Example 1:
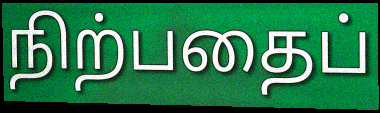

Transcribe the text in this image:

நிற்பதைப்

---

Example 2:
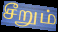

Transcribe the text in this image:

சீறும்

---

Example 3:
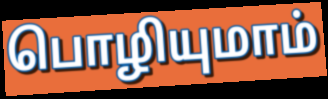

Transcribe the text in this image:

பொழியுமாம்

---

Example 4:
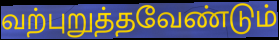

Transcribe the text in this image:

வற்புறுத்தவேண்டும்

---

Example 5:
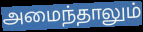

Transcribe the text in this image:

அமைந்தாலும்